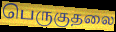
பெருகுதலை